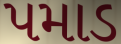
પમાડ